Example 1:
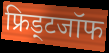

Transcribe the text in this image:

फ्रिड्टजॉफ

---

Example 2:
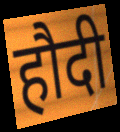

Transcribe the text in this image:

हौदी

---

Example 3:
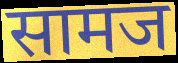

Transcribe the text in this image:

सामज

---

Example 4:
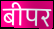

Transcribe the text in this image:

बीपर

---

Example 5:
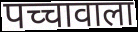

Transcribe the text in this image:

पच्चावाला